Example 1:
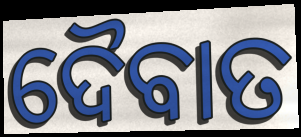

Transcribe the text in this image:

ଦୈବାତ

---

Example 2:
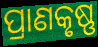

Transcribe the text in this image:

ପ୍ରାଣକୃଷ୍ଣ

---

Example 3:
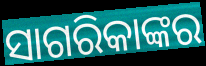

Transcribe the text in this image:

ସାଗରିକାଙ୍କର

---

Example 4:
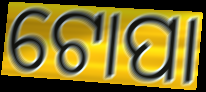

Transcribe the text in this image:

ଟୋପା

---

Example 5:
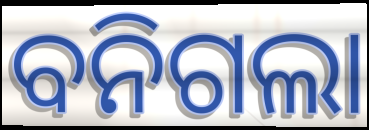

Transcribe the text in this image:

ବନିଗଲା